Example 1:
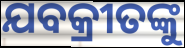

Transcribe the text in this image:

ଯବକ୍ରୀତଙ୍କୁ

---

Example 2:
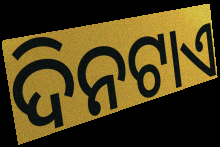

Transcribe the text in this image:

ଦିନଟାଏ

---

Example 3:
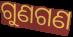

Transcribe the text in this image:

ଗୁଣଗଣ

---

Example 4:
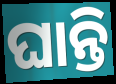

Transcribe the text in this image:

ଘାନ୍ତି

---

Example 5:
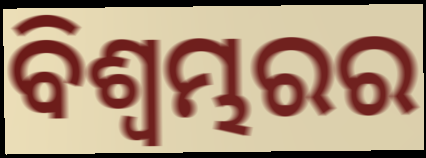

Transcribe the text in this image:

ବିଶ୍ଵମ୍ଭରର